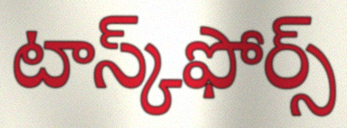
టాస్క్‌ఫోర్స్